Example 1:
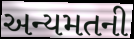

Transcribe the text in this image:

અન્યમતની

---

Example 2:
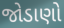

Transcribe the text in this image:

જોડાણો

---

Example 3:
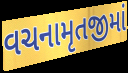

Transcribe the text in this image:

વચનામૃતજીમાં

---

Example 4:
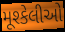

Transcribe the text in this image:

મૂશ્કેલીઓ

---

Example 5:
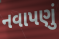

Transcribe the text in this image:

નવાપણું